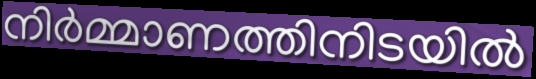
നിർമ്മാണത്തിനിടയിൽ